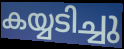
കയ്യടിച്ചു